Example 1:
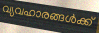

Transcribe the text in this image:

വ്യവഹാരങ്ങൾക്ക്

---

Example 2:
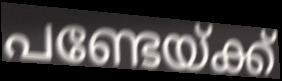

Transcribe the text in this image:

പണ്ടേയ്ക്ക്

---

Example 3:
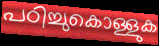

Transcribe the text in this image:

പഠിച്ചുകൊള്ളുക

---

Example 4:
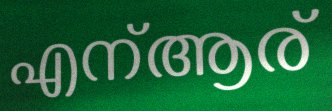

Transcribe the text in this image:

എന്ആര്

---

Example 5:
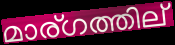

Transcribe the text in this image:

മാര്ഗത്തില്